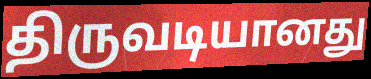
திருவடியானது